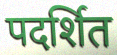
पदर्शित